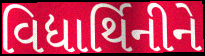
વિદ્યાર્થિનીને